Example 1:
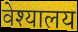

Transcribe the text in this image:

वेश्यालय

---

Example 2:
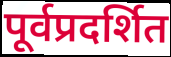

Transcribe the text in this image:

पूर्वप्रदर्शित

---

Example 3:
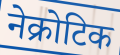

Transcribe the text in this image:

नेक्रोटिक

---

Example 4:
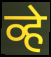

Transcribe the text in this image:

व्हे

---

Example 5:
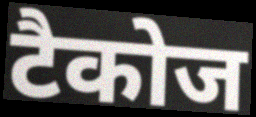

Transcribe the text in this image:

टैकोज